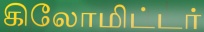
கிலோமிட்டர்